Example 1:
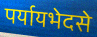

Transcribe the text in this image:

पर्यायभेदसे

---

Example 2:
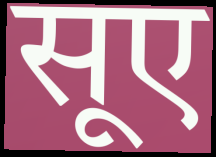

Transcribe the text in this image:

सूए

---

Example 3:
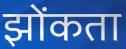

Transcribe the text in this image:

झोंकता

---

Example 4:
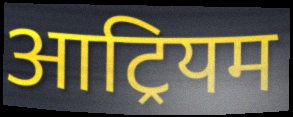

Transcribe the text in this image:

आट्रियम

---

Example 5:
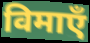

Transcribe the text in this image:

विमाएँ